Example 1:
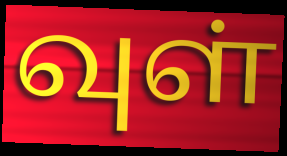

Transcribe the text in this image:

வுள்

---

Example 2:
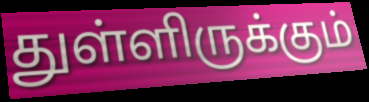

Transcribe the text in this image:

துள்ளிருக்கும்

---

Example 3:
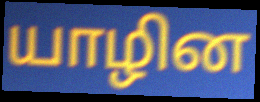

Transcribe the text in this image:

யாழின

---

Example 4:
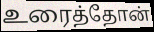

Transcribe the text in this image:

உரைத்தோன்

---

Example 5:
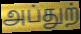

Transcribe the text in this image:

அப்துற்